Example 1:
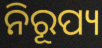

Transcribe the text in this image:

ନିରୂପ୍ୟ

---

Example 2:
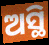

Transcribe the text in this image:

ଅସ୍ଥି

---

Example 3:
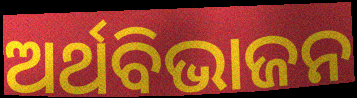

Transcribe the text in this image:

ଅର୍ଥବିଭାଜନ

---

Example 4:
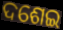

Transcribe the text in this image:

ଦଶେଇ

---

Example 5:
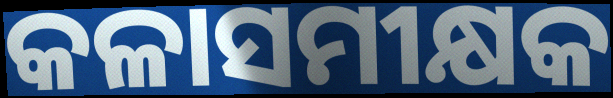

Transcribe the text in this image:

କଳାସମୀକ୍ଷକ